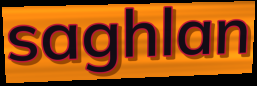
saghlan